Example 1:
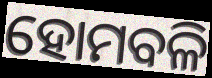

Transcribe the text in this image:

ହୋମବଳି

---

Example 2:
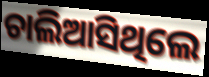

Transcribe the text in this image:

ଚାଲିଆସିଥିଲେ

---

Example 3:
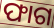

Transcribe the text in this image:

ଫାଗ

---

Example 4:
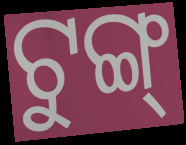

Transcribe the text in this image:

ଟୁଙ୍ଗ୍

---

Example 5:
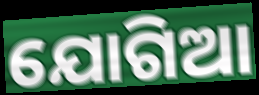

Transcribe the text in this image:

ଯୋଗିଆ